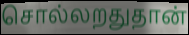
சொல்லறதுதான்